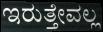
ಇರುತ್ತೇವಲ್ಲ